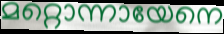
മറ്റൊന്നായേനെ